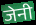
जेनी